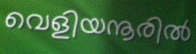
വെളിയനൂരിൽ